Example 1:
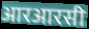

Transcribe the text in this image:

आरआरसी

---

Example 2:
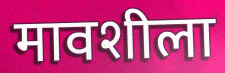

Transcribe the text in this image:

मावशीला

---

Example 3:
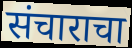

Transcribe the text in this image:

संचाराचा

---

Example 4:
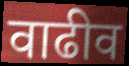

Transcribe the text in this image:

वाढीव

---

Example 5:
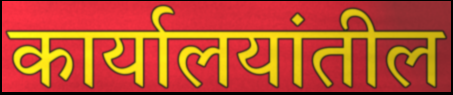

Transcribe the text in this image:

कार्यालयांतील